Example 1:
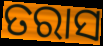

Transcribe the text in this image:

ତରାସ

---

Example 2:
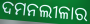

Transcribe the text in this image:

ଦମନଲୀଳାର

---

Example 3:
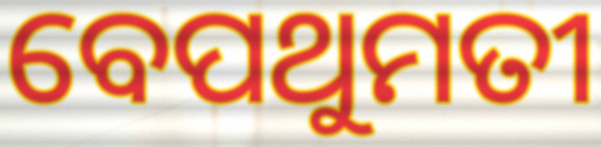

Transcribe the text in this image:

ବେପଥୁମତୀ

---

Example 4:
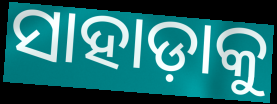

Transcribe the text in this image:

ସାହାଡ଼ାକୁ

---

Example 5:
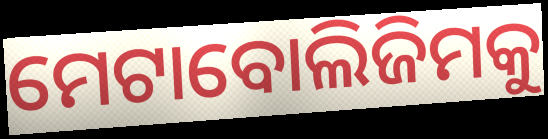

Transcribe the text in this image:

ମେଟାବୋଲିଜିମକୁ